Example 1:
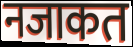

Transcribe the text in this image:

नजाकत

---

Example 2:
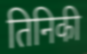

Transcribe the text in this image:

तिनिकी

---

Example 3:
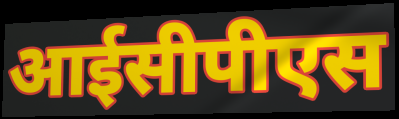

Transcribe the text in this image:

आईसीपीएस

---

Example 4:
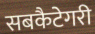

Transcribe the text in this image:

सबकैटेगरी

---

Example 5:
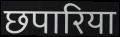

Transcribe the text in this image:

छपारिया